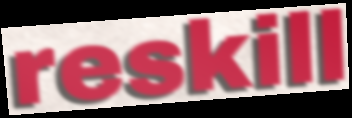
reskill